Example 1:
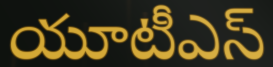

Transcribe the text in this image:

యూటీఎస్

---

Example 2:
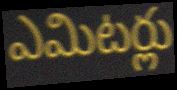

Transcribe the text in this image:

ఎమిటర్లు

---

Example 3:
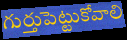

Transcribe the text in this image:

గుర్తుపెట్టుకోవాలి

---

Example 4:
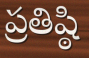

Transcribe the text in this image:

ప్రతిష్ఠి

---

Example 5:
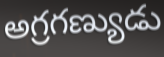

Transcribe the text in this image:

అగ్రగణ్యుడు